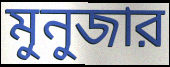
মুনুজার